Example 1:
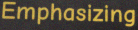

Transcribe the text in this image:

Emphasizing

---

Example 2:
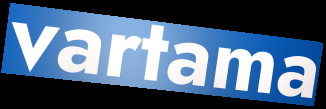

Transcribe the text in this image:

vartama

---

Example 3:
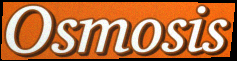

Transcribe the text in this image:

Osmosis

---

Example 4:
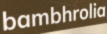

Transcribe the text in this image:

bambhrolia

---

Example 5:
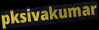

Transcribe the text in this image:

pksivakumar